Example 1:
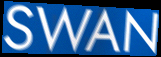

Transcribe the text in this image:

SWAN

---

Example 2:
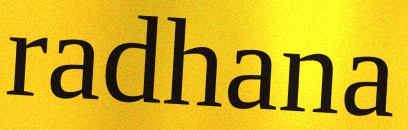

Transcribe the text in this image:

radhana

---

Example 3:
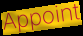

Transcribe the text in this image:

Appoint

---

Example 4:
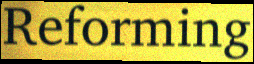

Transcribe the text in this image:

Reforming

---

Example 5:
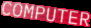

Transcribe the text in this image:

COMPUTER